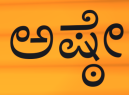
ಅಷ್ಠೇ